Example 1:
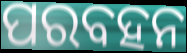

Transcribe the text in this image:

ପରବହନ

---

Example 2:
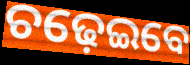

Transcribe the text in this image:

ଚଢ଼େଇବେ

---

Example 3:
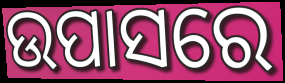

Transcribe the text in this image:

ଉପାସରେ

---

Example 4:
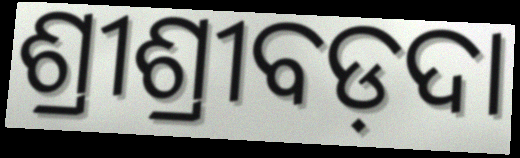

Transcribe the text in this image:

ଶ୍ରୀଶ୍ରୀବଡ଼ଦା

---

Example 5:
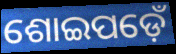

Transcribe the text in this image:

ଶୋଇପଡ଼େଁ